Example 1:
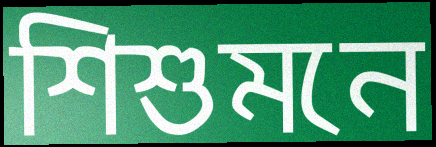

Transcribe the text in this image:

শিশুমনে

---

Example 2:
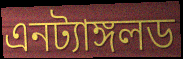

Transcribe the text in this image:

এনট্যাঙ্গলড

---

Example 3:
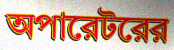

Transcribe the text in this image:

অপারেটরের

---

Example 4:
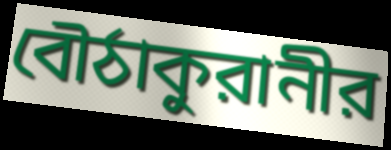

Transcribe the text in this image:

বৌঠাকুরানীর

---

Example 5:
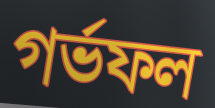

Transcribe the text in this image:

গর্ভফল